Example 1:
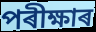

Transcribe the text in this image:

পৰীক্ষাৰ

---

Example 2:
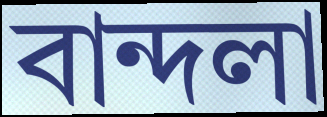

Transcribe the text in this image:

বান্দলা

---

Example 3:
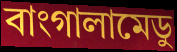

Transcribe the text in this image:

বাংগালামেডু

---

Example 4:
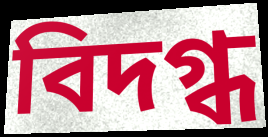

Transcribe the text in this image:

বিদগ্ধ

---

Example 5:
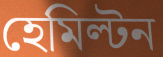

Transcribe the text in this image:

হেমিল্টন